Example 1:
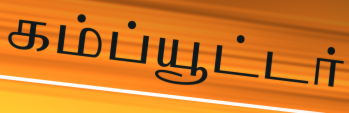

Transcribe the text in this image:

கம்ப்யூட்டர்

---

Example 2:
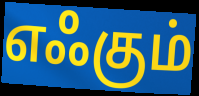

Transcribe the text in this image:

எஃகும்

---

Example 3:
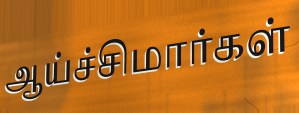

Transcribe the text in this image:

ஆய்ச்சிமார்கள்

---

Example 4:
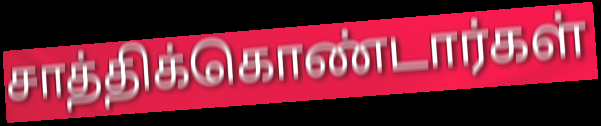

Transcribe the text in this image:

சாத்திக்கொண்டார்கள்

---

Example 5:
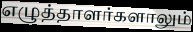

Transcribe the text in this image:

எழுத்தாளர்களாலும்